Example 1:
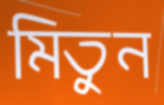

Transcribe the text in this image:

মিতুন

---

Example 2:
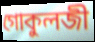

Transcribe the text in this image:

গোকুলজী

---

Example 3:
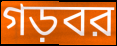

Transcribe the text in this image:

গড়বর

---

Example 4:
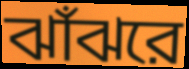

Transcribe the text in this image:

ঝাঁঝরে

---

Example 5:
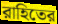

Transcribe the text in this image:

রাহিতের